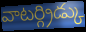
వాటర్గ్రిడ్కు